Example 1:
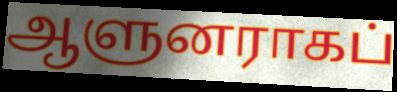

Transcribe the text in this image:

ஆளுனராகப்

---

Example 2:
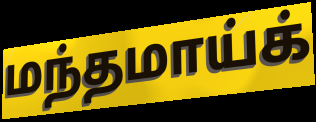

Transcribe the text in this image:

மந்தமாய்க்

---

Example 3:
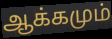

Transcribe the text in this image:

ஆக்கமும்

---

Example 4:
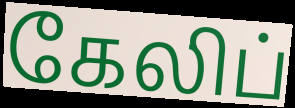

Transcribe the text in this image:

கேலிப்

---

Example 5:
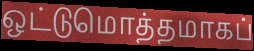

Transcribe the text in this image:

ஒட்டுமொத்தமாகப்